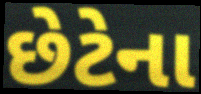
છેટેના